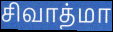
சிவாத்மா